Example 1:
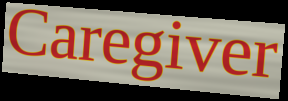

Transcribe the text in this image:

Caregiver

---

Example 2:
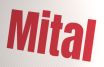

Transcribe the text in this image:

Mital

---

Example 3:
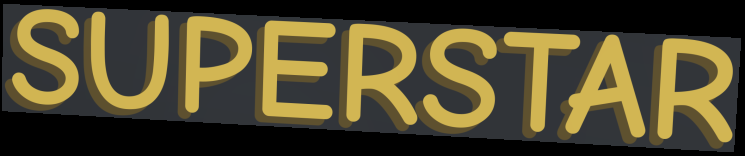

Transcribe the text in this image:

SUPERSTAR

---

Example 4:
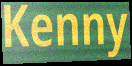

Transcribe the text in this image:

Kenny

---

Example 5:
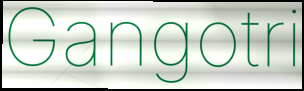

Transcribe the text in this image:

Gangotri